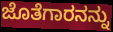
ಜೊತೆಗಾರನನ್ನು